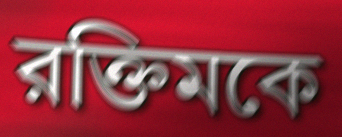
রক্তিমকে